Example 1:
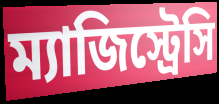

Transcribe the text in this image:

ম্যাজিস্ট্রেসি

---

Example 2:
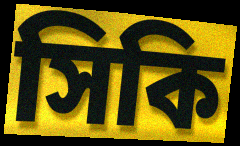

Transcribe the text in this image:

সিকি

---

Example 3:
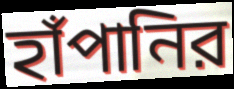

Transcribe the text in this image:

হাঁপানির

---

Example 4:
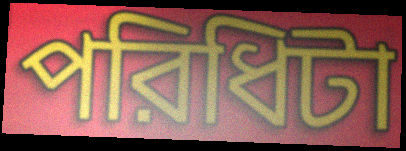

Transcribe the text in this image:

পরিধিটা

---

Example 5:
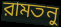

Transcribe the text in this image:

রামতনু